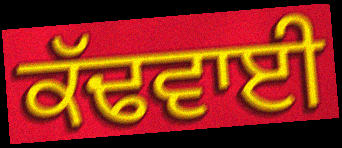
ਕੱਢਵਾਈ